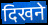
दिखने